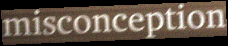
misconception